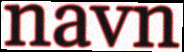
navn